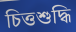
চিত্তশুদ্ধি